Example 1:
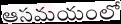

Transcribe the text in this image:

ఆసమయంలో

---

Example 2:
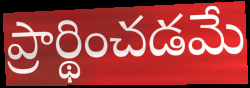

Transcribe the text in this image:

ప్రార్థించడమే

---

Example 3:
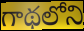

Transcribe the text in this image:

గాథలోని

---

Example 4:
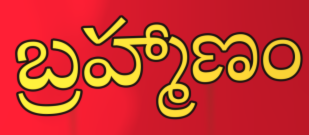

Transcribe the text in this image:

బ్రహ్మాణం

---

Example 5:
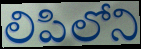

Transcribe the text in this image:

లిపిలోని